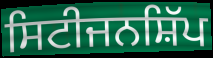
ਸਿਟੀਜਨਸ਼ਿੱਪ